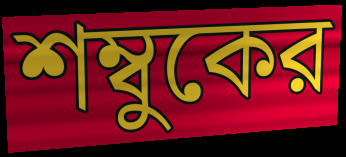
শম্বুকের